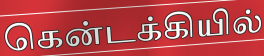
கென்டக்கியில்